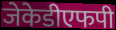
जेकेडीएफपी